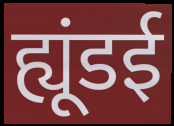
ह्यूंडई